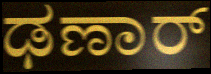
ಢಣಾರ್